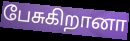
பேசுகிறானா